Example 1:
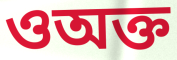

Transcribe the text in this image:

ওঅক্ত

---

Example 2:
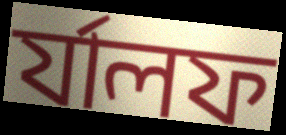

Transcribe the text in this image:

র্যালফ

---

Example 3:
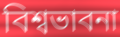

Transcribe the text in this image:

বিশ্বভাবনা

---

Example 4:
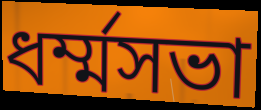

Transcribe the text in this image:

ধর্ম্মসভা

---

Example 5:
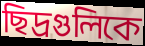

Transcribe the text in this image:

ছিদ্রগুলিকে